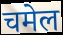
चमेल